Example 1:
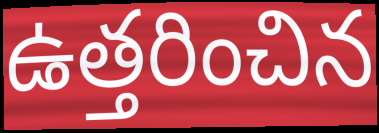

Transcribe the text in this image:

ఉత్తరించిన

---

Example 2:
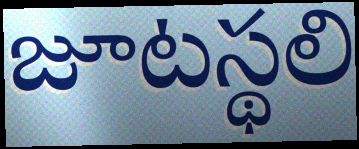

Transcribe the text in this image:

జూటస్థలి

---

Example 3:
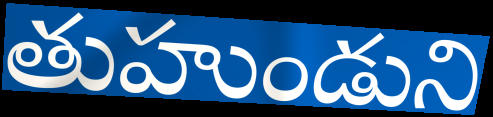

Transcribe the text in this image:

తుహుండుని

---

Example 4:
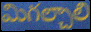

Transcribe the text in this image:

మిగల్చాలి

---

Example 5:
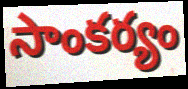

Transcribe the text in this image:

సాంకర్యం